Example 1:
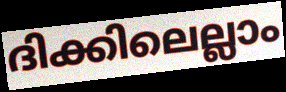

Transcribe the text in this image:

ദിക്കിലെല്ലാം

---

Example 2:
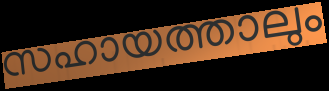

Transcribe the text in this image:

സഹായത്താലും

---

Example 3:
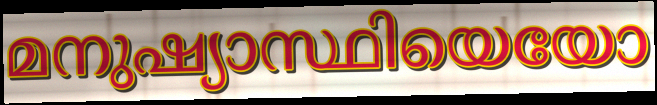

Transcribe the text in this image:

മനുഷ്യാസ്ഥിയെയോ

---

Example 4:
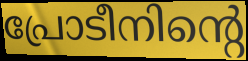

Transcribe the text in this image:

പ്രോടീനിന്റെ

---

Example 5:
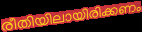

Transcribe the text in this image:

രീതിയിലായിരിക്കണം